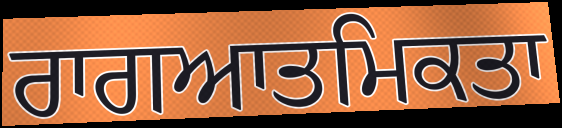
ਰਾਗਆਤਮਿਕਤਾ